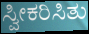
ಸ್ವೀಕರಿಸಿತು